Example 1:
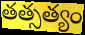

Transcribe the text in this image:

తత్సత్యం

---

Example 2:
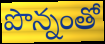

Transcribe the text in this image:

పొన్నంతో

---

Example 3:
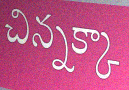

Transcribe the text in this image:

చిన్నక్కా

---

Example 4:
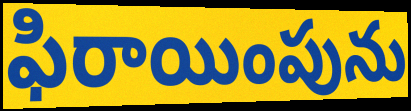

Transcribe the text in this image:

ఫిరాయింపును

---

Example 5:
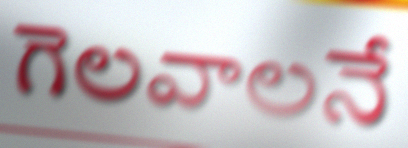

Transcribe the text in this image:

గెలవాలనే